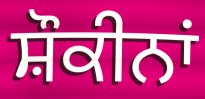
ਸ਼ੌਕੀਨਾਂ